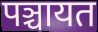
पञ्चायत